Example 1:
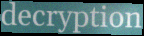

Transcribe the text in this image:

decryption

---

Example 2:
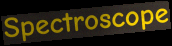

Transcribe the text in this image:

Spectroscope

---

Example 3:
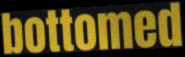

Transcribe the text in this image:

bottomed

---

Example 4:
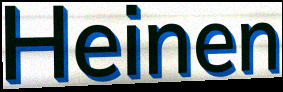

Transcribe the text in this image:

Heinen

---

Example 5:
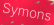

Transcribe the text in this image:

Symons